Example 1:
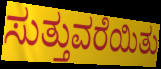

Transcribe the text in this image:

ಸುತ್ತುವರೆಯಿತು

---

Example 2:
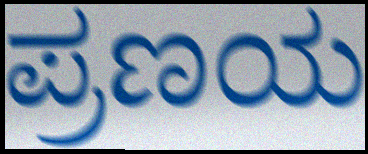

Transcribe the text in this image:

ಪ್ರಣಯ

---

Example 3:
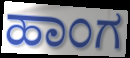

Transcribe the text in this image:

ಹಾಂಗ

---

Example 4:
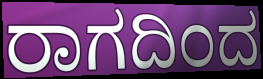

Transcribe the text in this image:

ರಾಗದಿಂದ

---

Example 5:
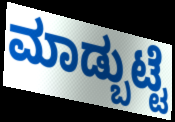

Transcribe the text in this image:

ಮಾಡ್ಬುಟ್ಟೆ